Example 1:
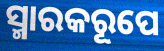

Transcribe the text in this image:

ସ୍ମାରକରୂପେ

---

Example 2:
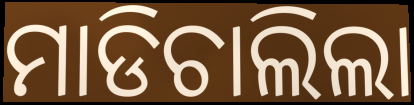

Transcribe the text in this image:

ମାଡିଚାଲିଲା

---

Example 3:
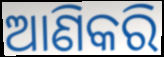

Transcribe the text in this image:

ଆଣିକରି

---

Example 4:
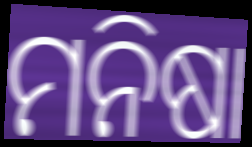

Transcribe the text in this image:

ମନିଷା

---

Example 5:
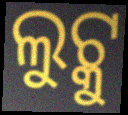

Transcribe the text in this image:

ଲୁଟ୍କୁ